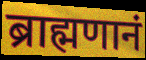
ब्राह्मणानं